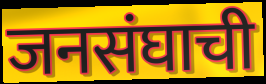
जनसंघाची